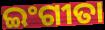
ଇଂଗୀତା